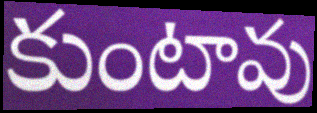
కుంటావు